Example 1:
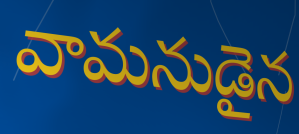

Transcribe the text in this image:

వామనుడైన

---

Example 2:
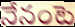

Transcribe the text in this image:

నేనంటె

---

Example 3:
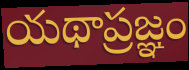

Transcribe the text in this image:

యథాప్రజ్ఞం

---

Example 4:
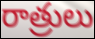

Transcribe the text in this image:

రాత్రులు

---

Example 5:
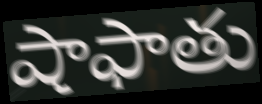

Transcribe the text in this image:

షాఫాతు